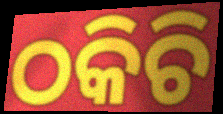
ଠକିଚି